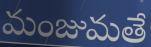
మంజుమతే